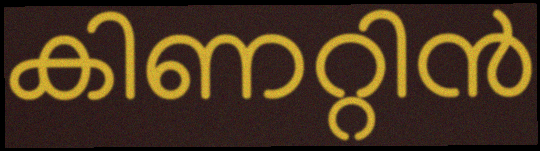
കിണറ്റിൻ